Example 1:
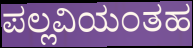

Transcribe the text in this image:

ಪಲ್ಲವಿಯಂತಹ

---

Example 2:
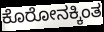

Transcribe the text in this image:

ಕೊರೋನಕ್ಕಿಂತ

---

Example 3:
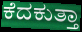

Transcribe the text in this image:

ಕೆದಕುತ್ತಾ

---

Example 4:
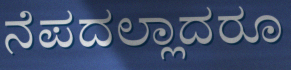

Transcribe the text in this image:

ನೆಪದಲ್ಲಾದರೂ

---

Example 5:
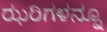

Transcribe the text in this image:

ಝರಿಗಳನ್ನೂ